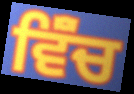
ਵਿੱੰਚ